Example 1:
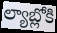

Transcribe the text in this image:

ల్యాబ్లోకి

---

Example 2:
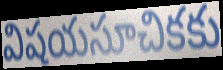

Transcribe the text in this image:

విషయసూచికకు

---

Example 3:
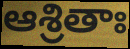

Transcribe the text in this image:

ఆశ్రితాః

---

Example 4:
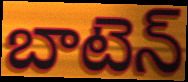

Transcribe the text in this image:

బాటెన్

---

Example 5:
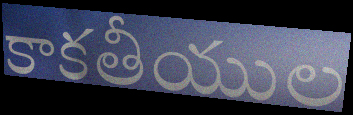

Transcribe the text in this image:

కాకతీయుల